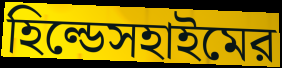
হিল্ডেসহাইমের